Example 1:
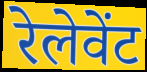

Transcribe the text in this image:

रेलेवेंट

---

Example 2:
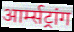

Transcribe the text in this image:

आर्म्सट्रांग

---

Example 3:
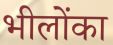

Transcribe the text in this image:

भीलोंका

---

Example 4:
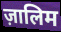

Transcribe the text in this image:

ज़ालिम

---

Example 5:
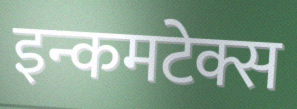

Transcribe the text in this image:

इन्कमटेक्स